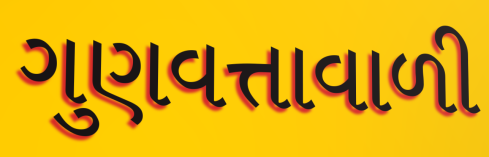
ગુણવત્તાવાળી